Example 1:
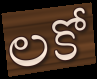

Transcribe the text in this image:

లకో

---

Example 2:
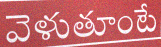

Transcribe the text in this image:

వెళుతూంటే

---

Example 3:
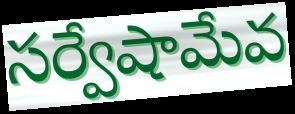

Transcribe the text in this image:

సర్వేషామేవ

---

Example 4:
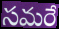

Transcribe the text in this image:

సమరే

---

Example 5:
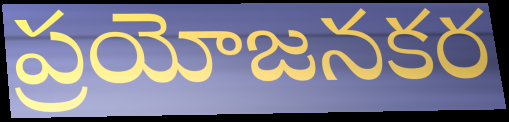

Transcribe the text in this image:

ప్రయోజనకర